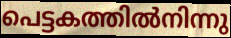
പെട്ടകത്തിൽനിന്നു